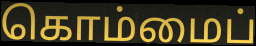
கொம்மைப்